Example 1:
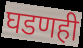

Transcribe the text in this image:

घडणही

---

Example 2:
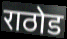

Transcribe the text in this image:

राठोड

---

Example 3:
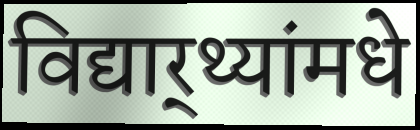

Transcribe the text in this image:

विद्यार्थ्यांमधे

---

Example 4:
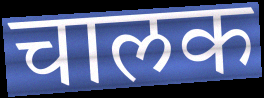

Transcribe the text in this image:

चालक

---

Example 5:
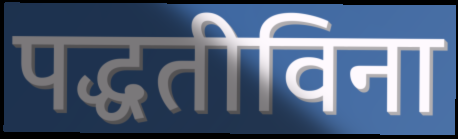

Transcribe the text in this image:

पद्धतीविना